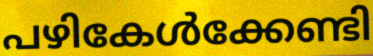
പഴികേൾക്കേണ്ടി